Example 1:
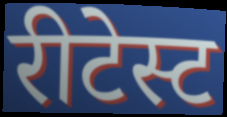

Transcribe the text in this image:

रीटेस्ट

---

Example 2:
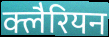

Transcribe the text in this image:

क्लैरियन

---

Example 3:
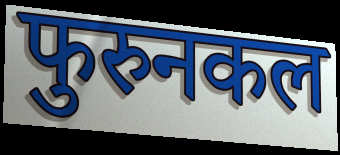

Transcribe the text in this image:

फुरुनकल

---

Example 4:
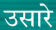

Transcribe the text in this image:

उसारे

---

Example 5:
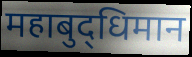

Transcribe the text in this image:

महाबुद्धिमान